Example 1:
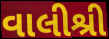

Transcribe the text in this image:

વાલીશ્રી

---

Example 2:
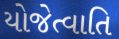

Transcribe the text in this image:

યોજેત્વાતિ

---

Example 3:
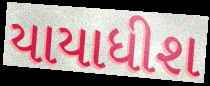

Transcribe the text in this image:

યાયાધીશ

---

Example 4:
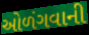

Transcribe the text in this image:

ઓળંગવાની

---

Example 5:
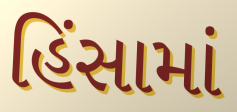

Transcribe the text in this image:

હિંસામાં